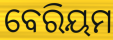
ବେରିୟମ